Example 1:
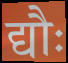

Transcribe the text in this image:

द्यौः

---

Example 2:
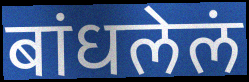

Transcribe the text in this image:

बांधलेलं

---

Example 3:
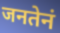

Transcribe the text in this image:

जनतेनं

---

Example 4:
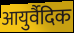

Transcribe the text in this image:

आयुर्वैदिक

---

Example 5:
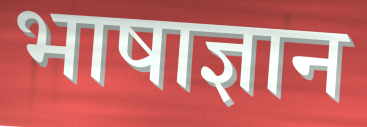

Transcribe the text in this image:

भाषाज्ञान